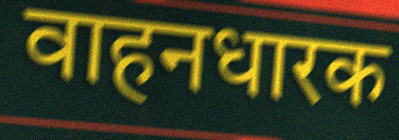
वाहनधारक